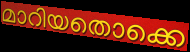
മാറിയതൊക്കെ